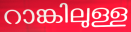
റാങ്കിലുള്ള